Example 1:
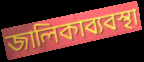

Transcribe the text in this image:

জালিকাব্যবস্থা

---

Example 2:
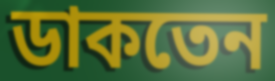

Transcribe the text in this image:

ডাকতেন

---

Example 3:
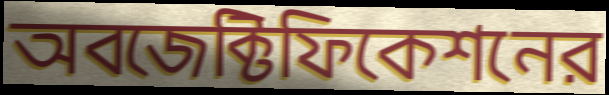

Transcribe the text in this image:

অবজেক্টিফিকেশনের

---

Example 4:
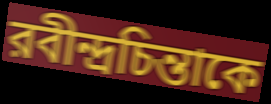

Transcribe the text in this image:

রবীন্দ্রচিন্তাকে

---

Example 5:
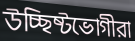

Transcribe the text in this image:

উচ্ছিষ্টভোগীরা